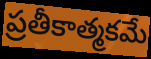
ప్రతీకాత్మకమే